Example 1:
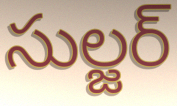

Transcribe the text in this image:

సుల్జర్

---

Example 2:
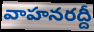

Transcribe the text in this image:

వాహనరద్దీ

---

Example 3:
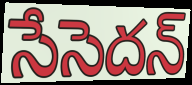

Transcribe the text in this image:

సేసెదన్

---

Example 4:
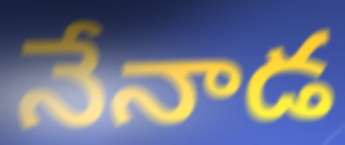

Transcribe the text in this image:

నేనాడ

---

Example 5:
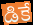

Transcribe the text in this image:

డికే